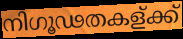
നിഗൂഢതകള്ക്ക്